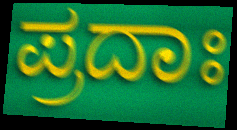
ಪ್ರದಾಃ